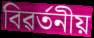
বিৱৰ্তনীয়